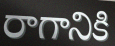
రాగానికి